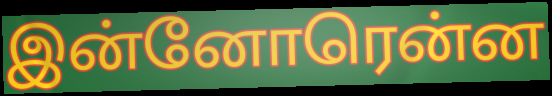
இன்னோரென்ன